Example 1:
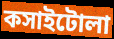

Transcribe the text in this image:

কসাইটোলা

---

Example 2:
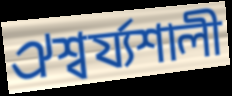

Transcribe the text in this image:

ঐশ্বর্য্যশালী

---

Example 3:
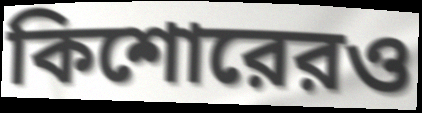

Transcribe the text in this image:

কিশোরেরও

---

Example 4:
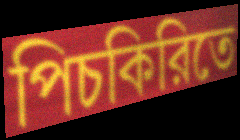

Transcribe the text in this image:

পিচকিরিতে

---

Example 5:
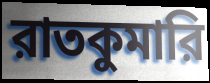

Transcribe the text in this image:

রাতকুমারি